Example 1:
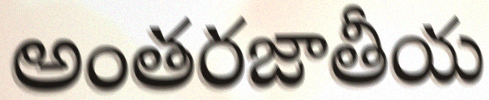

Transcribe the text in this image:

అంతరజాతీయ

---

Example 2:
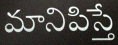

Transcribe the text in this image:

మానిపిస్తే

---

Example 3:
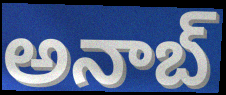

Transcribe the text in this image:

అనాబ్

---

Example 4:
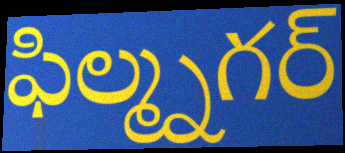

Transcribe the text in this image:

ఫిల్మ్నగర్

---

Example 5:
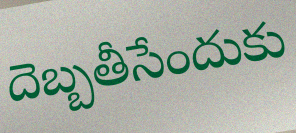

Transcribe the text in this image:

దెబ్బతీసేందుకు